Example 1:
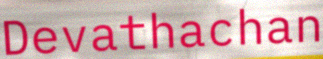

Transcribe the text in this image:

Devathachan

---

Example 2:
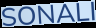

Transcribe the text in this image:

SONALI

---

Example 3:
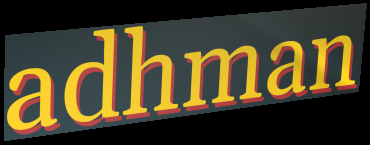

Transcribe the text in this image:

adhman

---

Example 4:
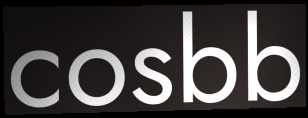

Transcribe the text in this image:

cosbb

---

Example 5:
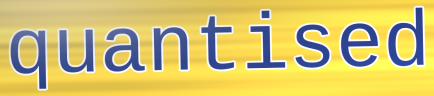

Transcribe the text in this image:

quantised